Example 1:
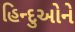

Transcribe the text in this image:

હિન્દુઓને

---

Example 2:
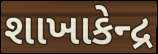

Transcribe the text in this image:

શાખાકેન્દ્ર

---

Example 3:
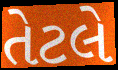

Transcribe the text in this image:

તેટલે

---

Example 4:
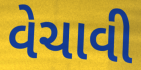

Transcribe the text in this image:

વેચાવી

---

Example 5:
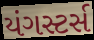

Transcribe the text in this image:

યંગસ્ટર્સ